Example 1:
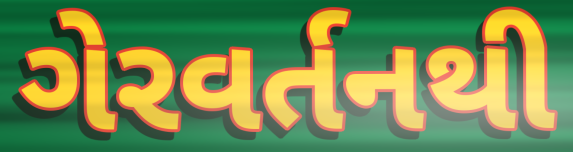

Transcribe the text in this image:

ગેરવર્તનથી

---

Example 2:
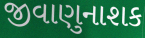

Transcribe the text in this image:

જીવાણુનાશક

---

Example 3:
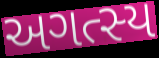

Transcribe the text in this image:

અગત્સ્ય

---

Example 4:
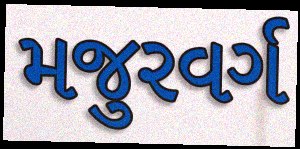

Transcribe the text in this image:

મજુરવર્ગ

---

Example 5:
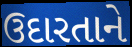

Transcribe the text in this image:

ઉદારતાને